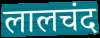
लालचंद